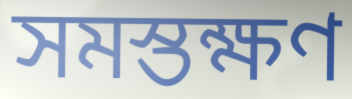
সমস্তক্ষণ